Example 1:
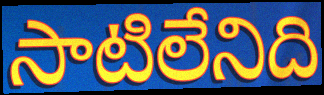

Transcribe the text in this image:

సాటిలేనిది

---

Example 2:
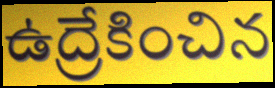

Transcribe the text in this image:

ఉద్రేకించిన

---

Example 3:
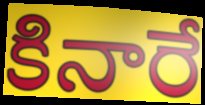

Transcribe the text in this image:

కినారే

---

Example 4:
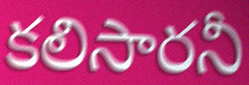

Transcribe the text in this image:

కలిసారనీ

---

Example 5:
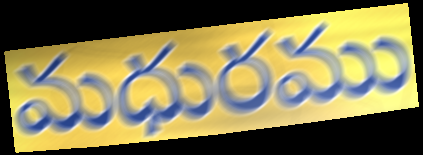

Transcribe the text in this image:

మధురము